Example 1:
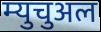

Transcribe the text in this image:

म्युचुअल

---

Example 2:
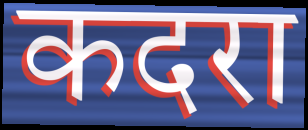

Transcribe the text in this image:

कदरा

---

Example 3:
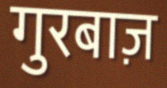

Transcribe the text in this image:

गुरबाज़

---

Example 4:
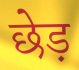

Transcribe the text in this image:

छेड़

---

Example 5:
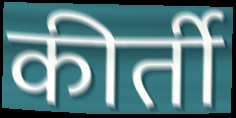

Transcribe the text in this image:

कीर्ती